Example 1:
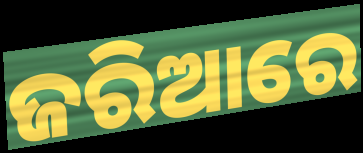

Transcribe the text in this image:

ଜରିଆରେ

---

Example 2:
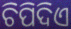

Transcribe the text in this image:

ଚିପିଦିଏ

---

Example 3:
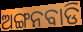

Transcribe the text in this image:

ଅଙ୍ଗନବାଡି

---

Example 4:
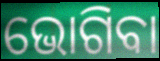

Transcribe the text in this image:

ଭୋଗିବା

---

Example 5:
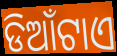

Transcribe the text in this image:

ଡିଆଁଟାଏ